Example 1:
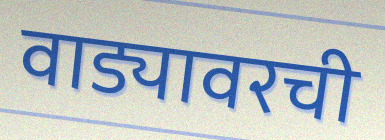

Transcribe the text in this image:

वाड्यावरची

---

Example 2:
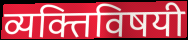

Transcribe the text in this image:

व्यक्तिविषयी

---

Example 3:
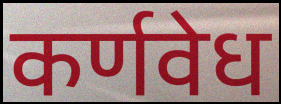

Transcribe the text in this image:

कर्णवेध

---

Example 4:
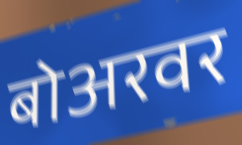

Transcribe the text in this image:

बोअरवर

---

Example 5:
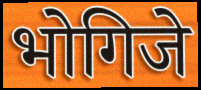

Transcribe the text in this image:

भोगिजे